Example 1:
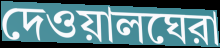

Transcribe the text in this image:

দেওয়ালঘেরা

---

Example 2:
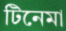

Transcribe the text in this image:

টিনেমা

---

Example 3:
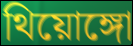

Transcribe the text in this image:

থিয়োঙ্গো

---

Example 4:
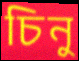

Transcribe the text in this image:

চিনু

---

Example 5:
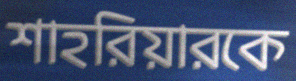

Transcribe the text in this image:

শাহরিয়ারকে